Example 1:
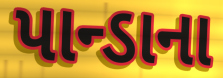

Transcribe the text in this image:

પાન્ડાના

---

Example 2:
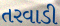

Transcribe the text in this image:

તરવાડી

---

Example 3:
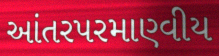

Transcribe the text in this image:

આંતરપરમાણ્વીય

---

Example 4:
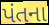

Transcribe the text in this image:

પંતના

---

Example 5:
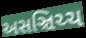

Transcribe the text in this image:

અસઞ્ચિચ્ચ